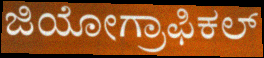
ಜಿಯೋಗ್ರಾಫಿಕಲ್